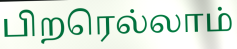
பிறரெல்லாம்